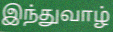
இந்துவாழ்